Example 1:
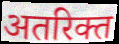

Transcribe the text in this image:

अतरिक्त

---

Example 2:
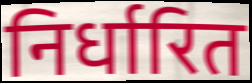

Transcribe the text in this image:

निर्धारित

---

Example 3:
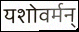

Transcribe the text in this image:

यशोवर्मन्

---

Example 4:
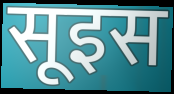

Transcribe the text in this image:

सूइस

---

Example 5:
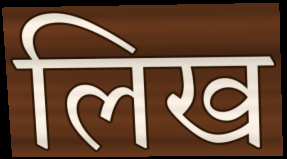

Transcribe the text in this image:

लिख